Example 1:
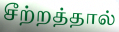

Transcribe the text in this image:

சீற்றத்தால்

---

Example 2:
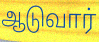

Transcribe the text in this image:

ஆடுவார்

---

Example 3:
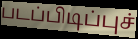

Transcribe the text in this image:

படப்பிடிப்புச்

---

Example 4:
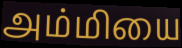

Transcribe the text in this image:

அம்மியை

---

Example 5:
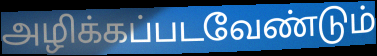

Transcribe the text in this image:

அழிக்கப்படவேண்டும்